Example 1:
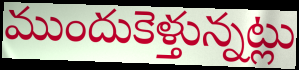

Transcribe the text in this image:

ముందుకెళ్తున్నట్లు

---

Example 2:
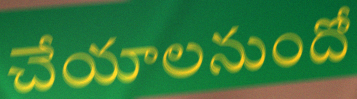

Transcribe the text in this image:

చేయాలనుందో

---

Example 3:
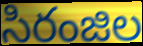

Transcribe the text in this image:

సిరంజిల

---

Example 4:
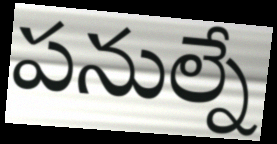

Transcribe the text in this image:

పనుల్నే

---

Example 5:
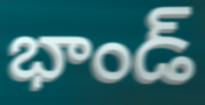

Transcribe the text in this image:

భాండ్